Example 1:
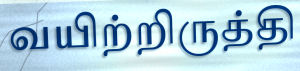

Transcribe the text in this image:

வயிற்றிருத்தி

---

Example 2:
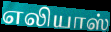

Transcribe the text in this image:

எலியாஸ்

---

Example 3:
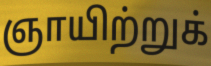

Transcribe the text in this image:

ஞாயிற்றுக்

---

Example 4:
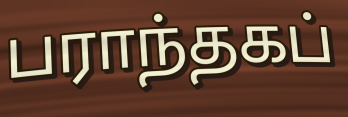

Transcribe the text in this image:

பராந்தகப்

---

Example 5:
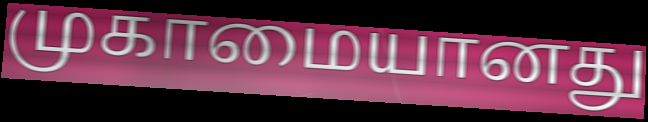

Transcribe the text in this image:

முகாமையானது